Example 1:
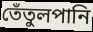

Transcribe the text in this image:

তেঁতুলপানি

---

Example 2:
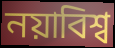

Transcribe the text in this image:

নয়াবিশ্ব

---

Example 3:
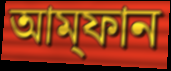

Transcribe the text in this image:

আম্‌ফান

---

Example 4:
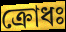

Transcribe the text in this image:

ক্রোধঃ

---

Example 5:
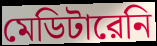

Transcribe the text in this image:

মেডিটারেনি